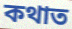
কথাত